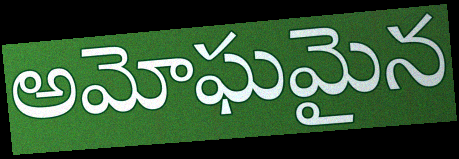
అమోఘమైన